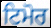
ਟਿਮੋਰ